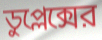
ডুপ্লেক্সের